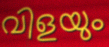
വിളയും